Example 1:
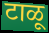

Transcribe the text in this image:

टाळू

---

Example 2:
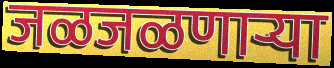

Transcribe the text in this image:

जळजळणाऱ्या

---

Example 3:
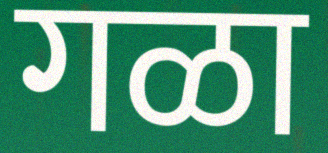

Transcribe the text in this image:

गळा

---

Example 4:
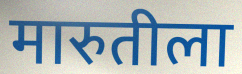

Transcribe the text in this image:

मारुतीला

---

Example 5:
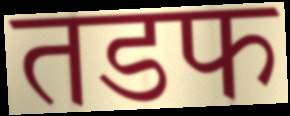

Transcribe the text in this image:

तडफ